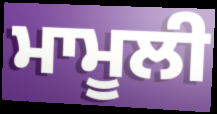
ਮਾਮੂਲੀ